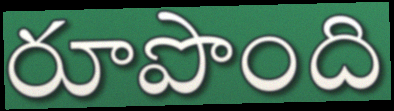
రూపొంది